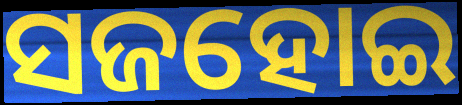
ସଜହୋଇ